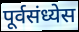
पूर्वसंध्येस